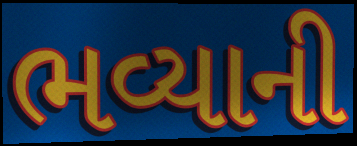
ભવ્યાની